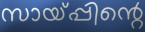
സായ്പ്പിന്റെ